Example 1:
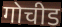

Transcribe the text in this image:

गोचीड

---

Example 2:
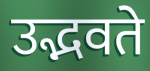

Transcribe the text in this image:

उद्भवते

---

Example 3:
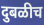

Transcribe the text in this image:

दुबळीच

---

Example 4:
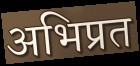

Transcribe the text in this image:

अभिप्रत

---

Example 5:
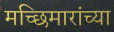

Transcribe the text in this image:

मच्छिमारांच्या